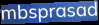
mbsprasad